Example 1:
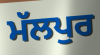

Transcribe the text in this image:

ਮੱਲਪੁਰ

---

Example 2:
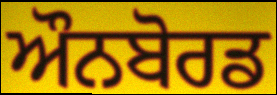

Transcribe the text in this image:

ਔਨਬੋਰਡ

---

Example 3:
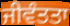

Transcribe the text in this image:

ਜੀਵੰਤਤਾ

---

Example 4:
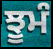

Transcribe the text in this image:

ਝੂਮੰ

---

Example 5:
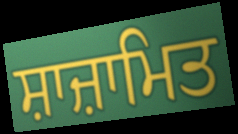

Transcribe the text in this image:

ਸ਼ਾਜ਼ਾਮਿਤ